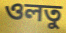
ওলতু